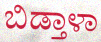
ಬಿಡ್ತಾಳಾ